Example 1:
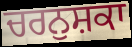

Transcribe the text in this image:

ਚਰਨੁਸ਼ਕਾ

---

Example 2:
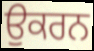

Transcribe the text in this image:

ਉਕਰਨ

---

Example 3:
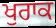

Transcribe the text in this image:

ਖੁਰਾਕ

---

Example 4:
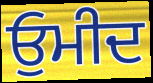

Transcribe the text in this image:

ਓੁਮੀਦ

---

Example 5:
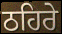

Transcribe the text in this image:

ਠਹਿਰੇ